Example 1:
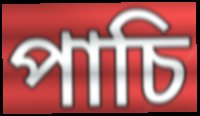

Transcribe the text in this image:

পাচি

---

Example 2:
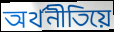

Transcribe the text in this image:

অৰ্থনীতিয়ে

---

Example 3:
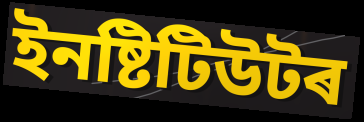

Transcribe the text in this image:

ইনষ্টিটিউটৰ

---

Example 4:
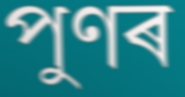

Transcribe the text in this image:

পুণৰ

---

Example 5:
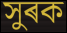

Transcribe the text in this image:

সুৰক